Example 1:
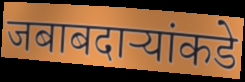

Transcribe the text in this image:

जबाबदाऱ्यांकडे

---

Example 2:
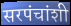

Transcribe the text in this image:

सरपंचांशी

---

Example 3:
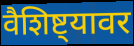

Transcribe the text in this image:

वैशिष्ट्यावर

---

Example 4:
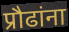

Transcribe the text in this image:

प्रौढांना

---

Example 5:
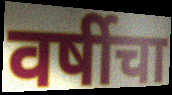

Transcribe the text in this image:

वर्षीचा